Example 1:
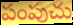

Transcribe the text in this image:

పంపుచు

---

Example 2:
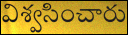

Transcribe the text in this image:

విశ్వసించారు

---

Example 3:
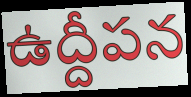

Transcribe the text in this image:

ఉద్దీపన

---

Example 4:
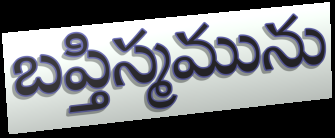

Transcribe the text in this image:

బప్తిస్మమును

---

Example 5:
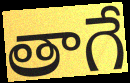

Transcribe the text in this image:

తాగే